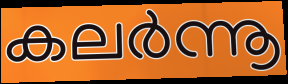
കലർന്നൂ